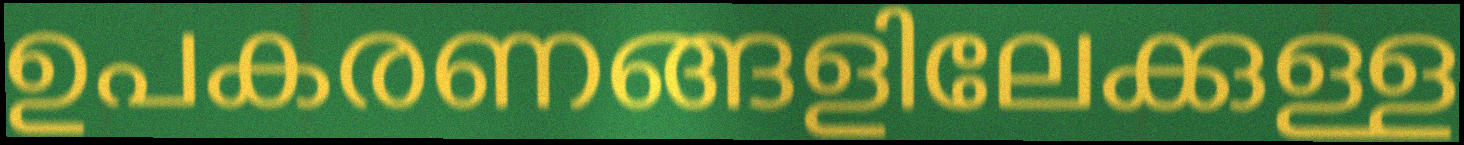
ഉപകരണങ്ങളിലേക്കുള്ള